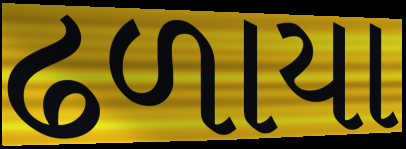
ઢળાયા